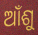
ଆଁଶୁ